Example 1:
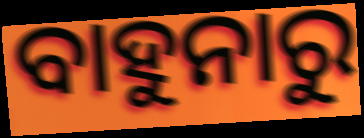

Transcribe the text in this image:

ବାହୁନାରୁ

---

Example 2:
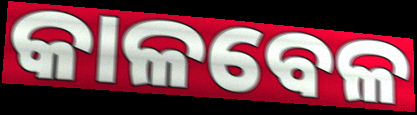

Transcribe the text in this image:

କାଳବେଳ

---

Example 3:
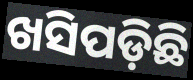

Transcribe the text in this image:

ଖସିପଡ଼ିଛି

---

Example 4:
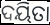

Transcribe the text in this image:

ଦୟିତା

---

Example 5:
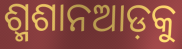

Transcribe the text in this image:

ଶ୍ମଶାନଆଡ଼କୁ